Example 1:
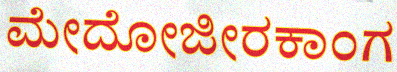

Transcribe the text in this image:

ಮೇದೋಜೀರಕಾಂಗ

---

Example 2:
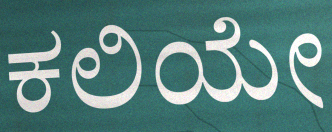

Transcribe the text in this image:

ಕಲಿಯೇ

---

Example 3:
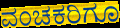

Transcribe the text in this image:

ವಂಚಕರಿಗೂ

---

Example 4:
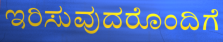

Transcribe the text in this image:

ಇರಿಸುವುದರೊಂದಿಗೆ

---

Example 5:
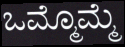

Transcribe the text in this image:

ಒಮ್ಮೊಮ್ಮೆ